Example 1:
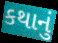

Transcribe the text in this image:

કથાનું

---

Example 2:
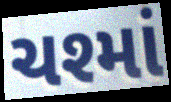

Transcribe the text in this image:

ચશ્માં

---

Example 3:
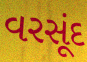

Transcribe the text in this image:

વરસૂંદ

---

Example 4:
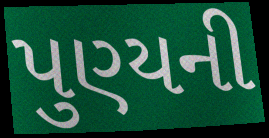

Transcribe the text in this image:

પુણ્યની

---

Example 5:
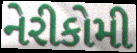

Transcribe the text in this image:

નેરીકોમી